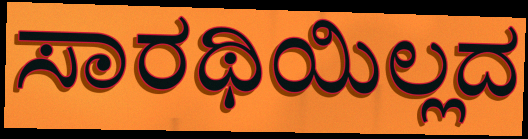
ಸಾರಥಿಯಿಲ್ಲದ